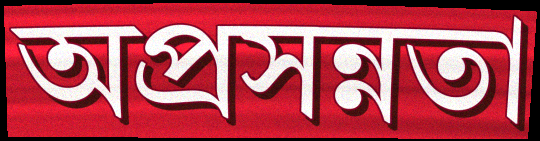
অপ্রসন্নতা